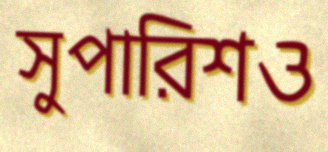
সুপারিশও